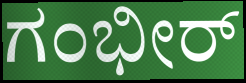
ಗಂಭೀರ್